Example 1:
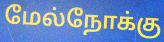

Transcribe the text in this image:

மேல்நோக்கு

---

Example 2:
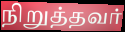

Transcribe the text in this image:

நிறுத்தவர்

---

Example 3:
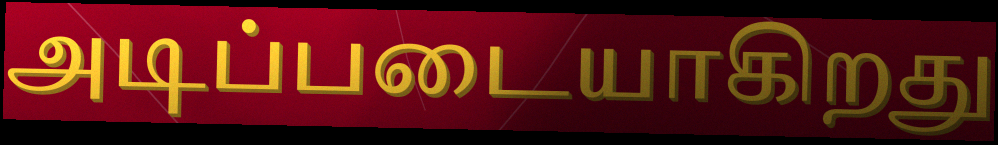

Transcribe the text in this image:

அடிப்படையாகிறது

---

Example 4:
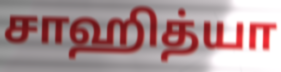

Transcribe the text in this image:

சாஹித்யா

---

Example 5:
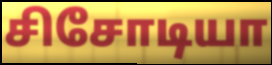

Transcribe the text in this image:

சிசோடியா